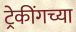
ट्रेकींगच्या